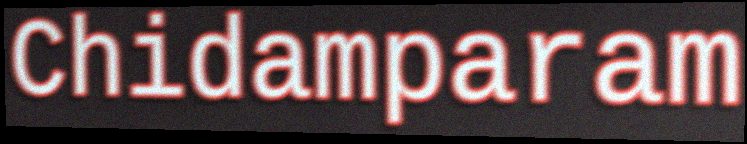
Chidamparam